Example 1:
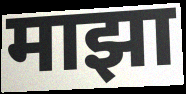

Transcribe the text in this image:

माझा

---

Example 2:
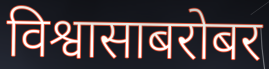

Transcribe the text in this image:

विश्वासाबरोबर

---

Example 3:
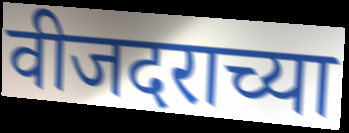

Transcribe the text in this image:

वीजदराच्या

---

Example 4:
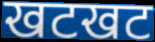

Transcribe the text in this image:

खटखट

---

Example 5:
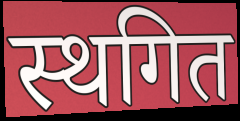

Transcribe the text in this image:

स्थगित